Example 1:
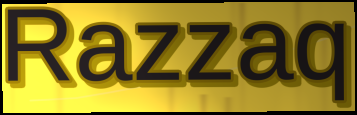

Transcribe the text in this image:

Razzaq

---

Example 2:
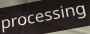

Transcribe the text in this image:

processing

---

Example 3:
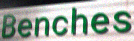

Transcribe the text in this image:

Benches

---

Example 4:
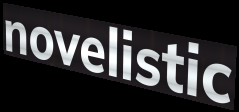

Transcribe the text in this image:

novelistic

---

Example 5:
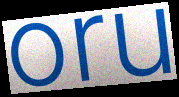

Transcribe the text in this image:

oru